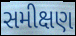
સમીક્ષણ